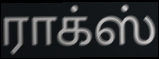
ராக்ஸ்